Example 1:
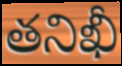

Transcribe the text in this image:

తనిఖీ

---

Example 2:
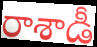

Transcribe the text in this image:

రాశాడీ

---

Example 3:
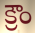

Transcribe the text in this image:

క్రౌం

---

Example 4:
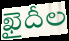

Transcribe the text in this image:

ఖైదీల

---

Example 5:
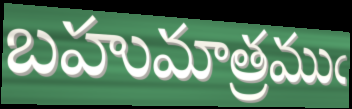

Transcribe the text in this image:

బహుమాత్రముఁ